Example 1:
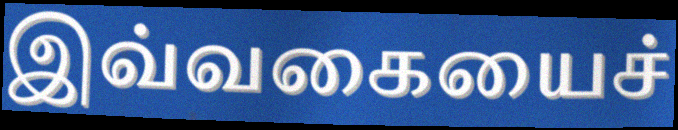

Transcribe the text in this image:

இவ்வகையைச்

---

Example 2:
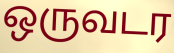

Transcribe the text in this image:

ஒருவடர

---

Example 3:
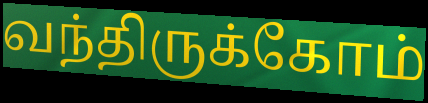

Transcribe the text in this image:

வந்திருக்கோம்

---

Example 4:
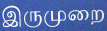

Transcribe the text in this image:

இருமுறை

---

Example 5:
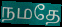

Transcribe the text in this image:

நமதே